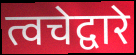
त्वचेद्वारे